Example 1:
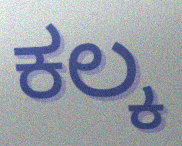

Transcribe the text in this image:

ಕಲ್ಕ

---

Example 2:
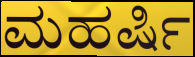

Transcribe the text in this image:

ಮಹರ್ಷಿ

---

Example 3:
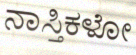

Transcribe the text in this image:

ನಾಸ್ತಿಕಳೋ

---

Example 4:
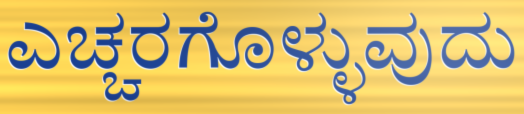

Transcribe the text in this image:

ಎಚ್ಚರಗೊಳ್ಳುವುದು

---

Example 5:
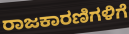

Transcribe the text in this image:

ರಾಜಕಾರಣಿಗಳಿಗೆ